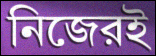
নিজেরই